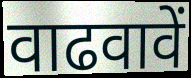
वाढवावें